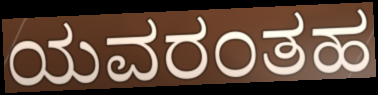
ಯವರಂತಹ